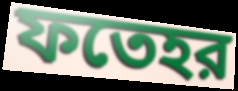
ফতেহর